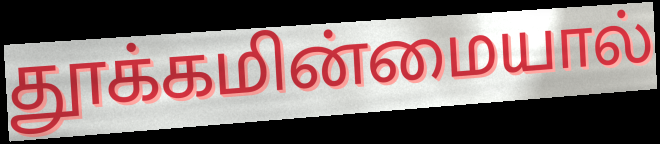
தூக்கமின்மையால்